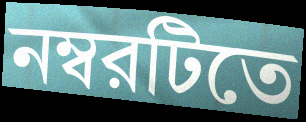
নম্বরটিতে